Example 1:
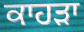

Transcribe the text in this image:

ਕਾਹੜਾ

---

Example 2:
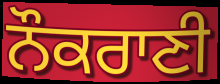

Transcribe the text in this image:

ਨੌਕਰਾਣੀ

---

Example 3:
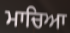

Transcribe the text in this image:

ਮਾਚਿਆ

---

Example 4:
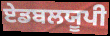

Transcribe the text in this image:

ਏਡਬਲਯੂਪੀ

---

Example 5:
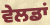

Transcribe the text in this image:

ਵੇਲਡਾਂ